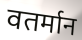
वतर्मान